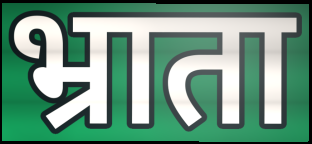
भ्राता